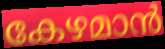
കേഴമാൻ